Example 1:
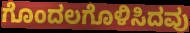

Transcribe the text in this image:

ಗೊಂದಲಗೊಳಿಸಿದವು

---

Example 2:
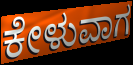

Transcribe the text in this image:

ಕೇಳುವಾಗ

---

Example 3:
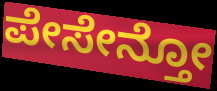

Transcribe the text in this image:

ಪೇಸೇನ್ತೋ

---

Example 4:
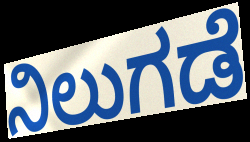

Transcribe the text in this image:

ನಿಲುಗಡೆ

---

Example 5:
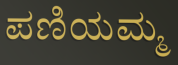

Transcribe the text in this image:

ಪಣಿಯಮ್ಮ